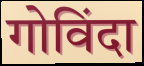
गोविंदा